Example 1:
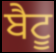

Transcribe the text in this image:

ਬੈਟੂ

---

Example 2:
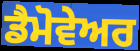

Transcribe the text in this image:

ਡੈਮੋਵੇਅਰ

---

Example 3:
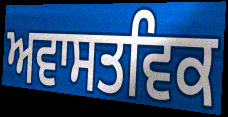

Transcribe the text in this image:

ਅਵਾਸਤਵਿਕ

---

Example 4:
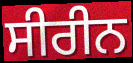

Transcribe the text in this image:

ਸੀਰੀਨ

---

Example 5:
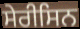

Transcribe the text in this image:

ਸੇਰੀਸਿਨ